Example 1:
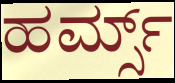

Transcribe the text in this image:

ಹರ್ಮ್ಸ್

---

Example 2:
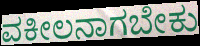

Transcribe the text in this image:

ವಕೀಲನಾಗಬೇಕು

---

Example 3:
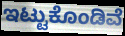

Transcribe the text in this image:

ಇಟ್ಟುಕೊಂಡಿವೆ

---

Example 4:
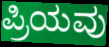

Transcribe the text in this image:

ಪ್ರಿಯವು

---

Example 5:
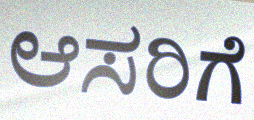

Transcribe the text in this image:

ಆಸರಿಗೆ